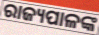
ରାଜ୍ୟପାଳଙ୍କ